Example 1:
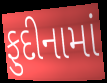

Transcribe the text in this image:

ફુદીનામાં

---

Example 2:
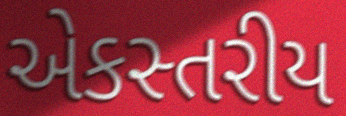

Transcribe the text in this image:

એકસ્તરીય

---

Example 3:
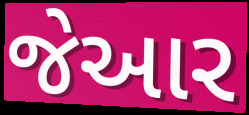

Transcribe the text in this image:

જેઆર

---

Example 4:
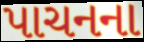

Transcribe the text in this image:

પાચનના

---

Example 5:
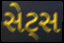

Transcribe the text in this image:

સેટ્સ